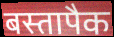
बस्तापैक